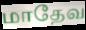
மாதேவ